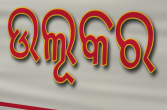
ଉଲୂକର